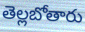
తెల్లబోతారు